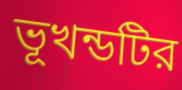
ভূখন্ডটির